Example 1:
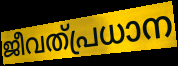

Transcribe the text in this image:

ജീവത്പ്രധാന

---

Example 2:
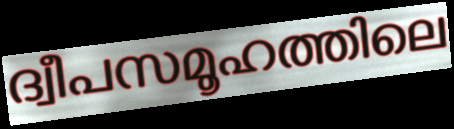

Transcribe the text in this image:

ദ്വീപസമൂഹത്തിലെ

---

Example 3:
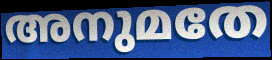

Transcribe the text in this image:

അനുമതേ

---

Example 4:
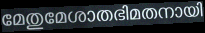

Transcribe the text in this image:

മേതുമേശാതഭിമതനായി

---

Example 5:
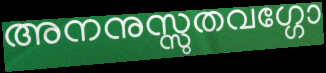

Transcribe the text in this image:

അനനുസ്സുതവഗ്ഗോ